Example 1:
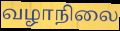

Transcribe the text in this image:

வழாநிலை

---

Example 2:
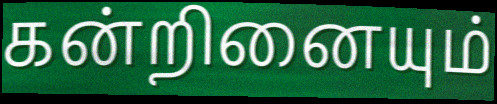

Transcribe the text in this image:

கன்றினையும்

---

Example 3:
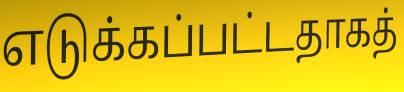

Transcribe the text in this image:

எடுக்கப்பட்டதாகத்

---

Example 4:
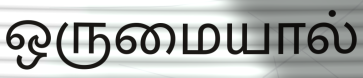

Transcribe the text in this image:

ஒருமையால்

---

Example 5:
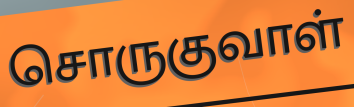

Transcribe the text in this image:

சொருகுவாள்